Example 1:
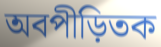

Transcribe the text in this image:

অবপীড়িতক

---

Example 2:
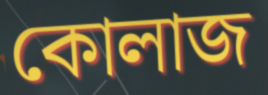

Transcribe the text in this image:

কোলাজ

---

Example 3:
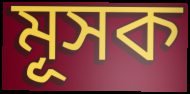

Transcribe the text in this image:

মূসক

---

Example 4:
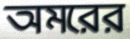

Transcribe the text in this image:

অমরের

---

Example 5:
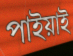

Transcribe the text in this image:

পাইয়াই